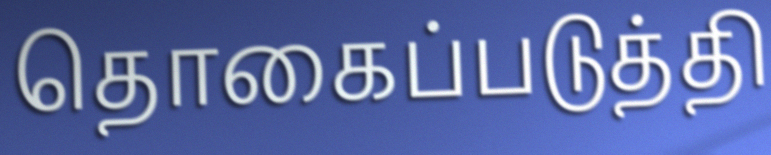
தொகைப்படுத்தி